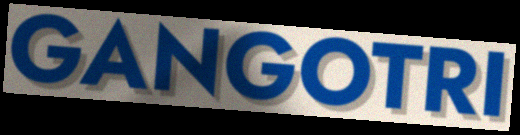
GANGOTRI